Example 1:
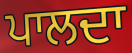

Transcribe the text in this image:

ਪਾਲਦਾ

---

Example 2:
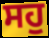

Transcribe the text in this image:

ਸਹੁ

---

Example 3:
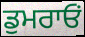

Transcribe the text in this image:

ਡੁਮਰਾਓਂ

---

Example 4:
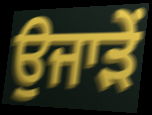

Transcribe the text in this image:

ਉਜਾੜੇਂ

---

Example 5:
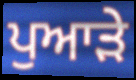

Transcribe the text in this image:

ਪੁਆੜੇ